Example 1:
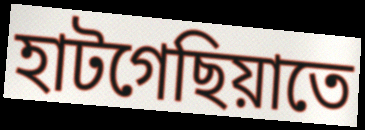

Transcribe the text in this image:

হাটগেছিয়াতে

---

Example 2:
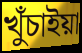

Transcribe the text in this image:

খুঁচাইয়া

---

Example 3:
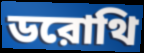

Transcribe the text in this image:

ডরোথি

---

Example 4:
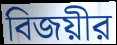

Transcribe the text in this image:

বিজয়ীর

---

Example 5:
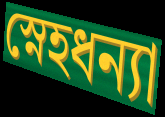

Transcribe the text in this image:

স্নেহধন্যা